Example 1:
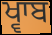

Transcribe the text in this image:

ਖ੍ਵਾਬ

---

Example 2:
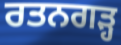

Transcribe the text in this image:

ਰਤਨਗੜ੍ਹ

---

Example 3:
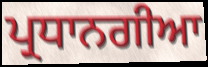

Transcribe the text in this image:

ਪ੍ਰਧਾਨਗੀਆ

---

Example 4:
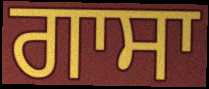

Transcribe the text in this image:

ਗਾਸਾ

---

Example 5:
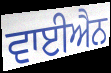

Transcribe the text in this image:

ਵਾਈਐਨ